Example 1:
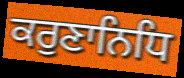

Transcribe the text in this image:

ਕਰੁਣਾਨਿਧਿ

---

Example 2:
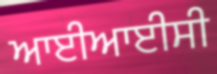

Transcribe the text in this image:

ਆਈਆਈਸੀ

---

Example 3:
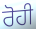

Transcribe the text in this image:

ਰੋਹੀ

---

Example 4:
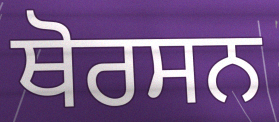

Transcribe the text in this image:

ਥੋਰਸਨ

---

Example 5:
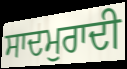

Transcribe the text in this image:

ਸਾਦਮੁਰਾਦੀ